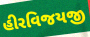
હીરવિજયજી